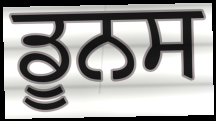
ਡੂਨਸ